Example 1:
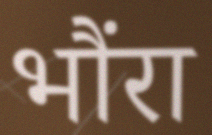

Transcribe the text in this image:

भौंरा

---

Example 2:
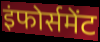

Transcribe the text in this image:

इंफोर्समेंट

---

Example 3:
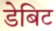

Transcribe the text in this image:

डेबिट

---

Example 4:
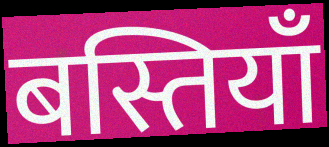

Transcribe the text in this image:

बस्तियाँ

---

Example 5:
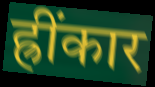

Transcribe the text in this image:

ह्रींकार